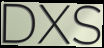
DXS